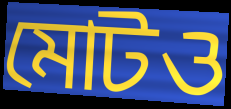
মোটও